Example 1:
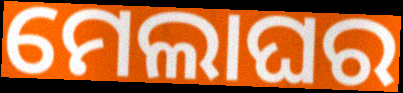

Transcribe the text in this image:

ମେଲାଘର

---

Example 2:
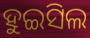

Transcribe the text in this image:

ହୁଇସିଲ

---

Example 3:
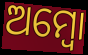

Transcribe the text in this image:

ଅମ୍ୱୋ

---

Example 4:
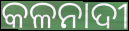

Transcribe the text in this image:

କଳନାଦୀ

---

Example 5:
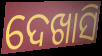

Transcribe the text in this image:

ଦେଖାସି